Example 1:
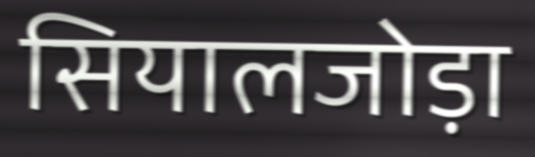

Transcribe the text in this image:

सियालजोड़ा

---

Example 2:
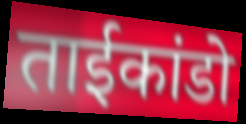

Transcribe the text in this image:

ताईकांडो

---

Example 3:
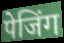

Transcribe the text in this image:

पेजिंग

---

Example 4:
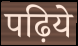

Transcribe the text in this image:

पढ़िये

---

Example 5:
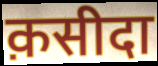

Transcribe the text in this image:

क़सीदा